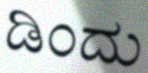
ಡಿಂದು